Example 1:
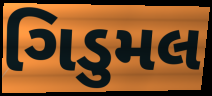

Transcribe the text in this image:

ગિડુમલ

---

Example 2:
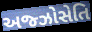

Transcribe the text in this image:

અજ્ઝોસેતિ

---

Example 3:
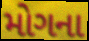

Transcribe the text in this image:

મોગના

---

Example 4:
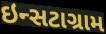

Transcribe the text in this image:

ઇન્સટાગ્રામ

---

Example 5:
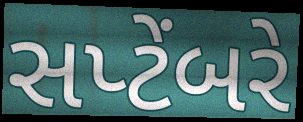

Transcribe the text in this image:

સપ્ટેંબરે